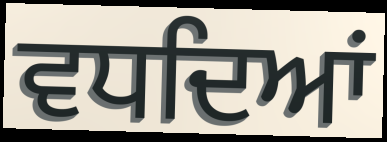
ਵਧਦਿਆਂ